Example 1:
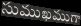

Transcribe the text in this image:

సుముఖముగా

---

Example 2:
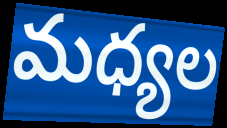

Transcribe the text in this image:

మధ్యల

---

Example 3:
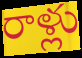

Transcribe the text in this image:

రాళ్లు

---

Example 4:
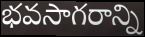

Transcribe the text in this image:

భవసాగరాన్ని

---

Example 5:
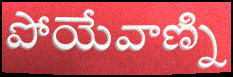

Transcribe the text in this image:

పోయేవాణ్ని